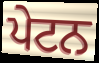
ਪੇਟਨ